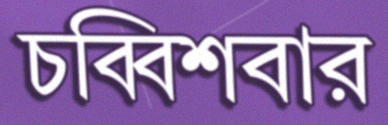
চব্বিশবার